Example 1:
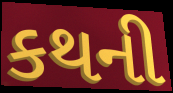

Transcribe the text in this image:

કથની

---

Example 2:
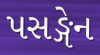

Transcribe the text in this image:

પસઙ્ગેન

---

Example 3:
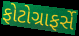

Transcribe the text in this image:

ફોટોગ્રાફર્સે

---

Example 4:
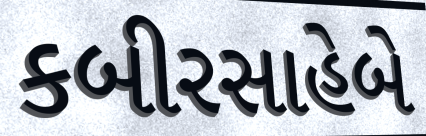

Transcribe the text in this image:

કબીરસાહેબે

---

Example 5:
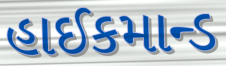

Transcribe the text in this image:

હાઈકમાન્ડ